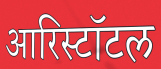
आरिस्टॉटल